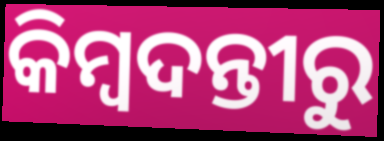
କିମ୍ବଦନ୍ତୀରୁ